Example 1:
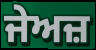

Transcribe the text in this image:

ਜੇਅਜ਼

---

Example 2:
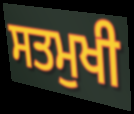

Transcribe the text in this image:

ਸਤਮੁਖੀ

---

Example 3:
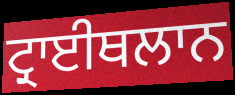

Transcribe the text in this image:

ਟ੍ਰਾਈਥਲਾਨ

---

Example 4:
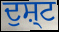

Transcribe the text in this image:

ਦੁਸ਼੍ਟ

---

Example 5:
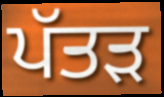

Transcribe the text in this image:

ਪੱਤਡ਼